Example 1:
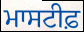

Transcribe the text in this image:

ਮਾਸਟੀਫ਼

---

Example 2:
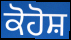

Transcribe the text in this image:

ਕੋਹੋਸ਼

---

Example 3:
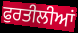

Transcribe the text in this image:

ਫੁਰਤੀਲੀਆਂ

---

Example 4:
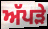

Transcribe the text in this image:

ਅੱਪੜੇ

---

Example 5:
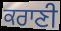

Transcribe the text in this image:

ਕਰਾਣੀ